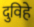
दुविहे